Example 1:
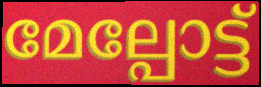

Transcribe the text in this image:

മേല്പോട്ട്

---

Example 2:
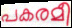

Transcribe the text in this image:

പകരമീ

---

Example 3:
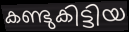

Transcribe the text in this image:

കണ്ടുകിട്ടിയ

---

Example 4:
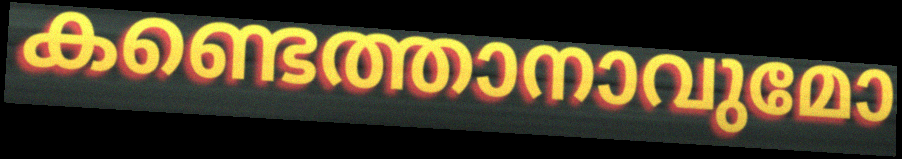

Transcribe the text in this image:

കണ്ടെത്താനാവുമോ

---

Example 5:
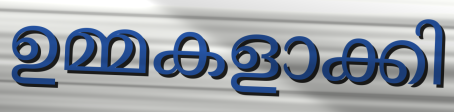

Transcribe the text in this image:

ഉമ്മകളാക്കി